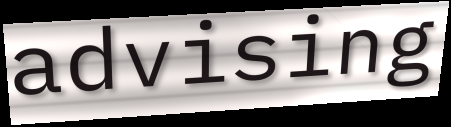
advising